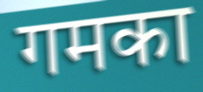
गमका